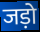
जड़ो